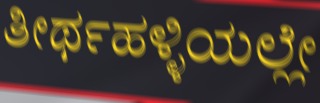
ತೀರ್ಥಹಳ್ಳಿಯಲ್ಲೇ